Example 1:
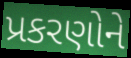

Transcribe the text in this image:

પ્રકરણોને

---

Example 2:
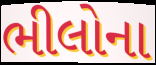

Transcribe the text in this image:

ભીલોના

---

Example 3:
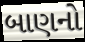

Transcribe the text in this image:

બાણનો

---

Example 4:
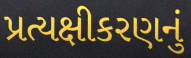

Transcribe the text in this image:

પ્રત્યક્ષીકરણનું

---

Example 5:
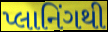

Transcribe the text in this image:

પ્લાનિંગથી